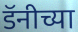
डॅनीच्या